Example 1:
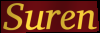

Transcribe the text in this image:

Suren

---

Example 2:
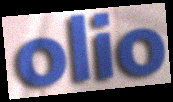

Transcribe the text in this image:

olio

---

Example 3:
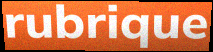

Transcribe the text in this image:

rubrique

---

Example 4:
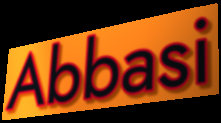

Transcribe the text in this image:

Abbasi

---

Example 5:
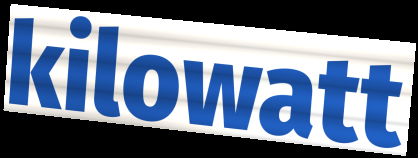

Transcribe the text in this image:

kilowatt